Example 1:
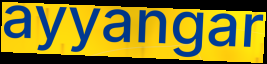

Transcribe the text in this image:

ayyangar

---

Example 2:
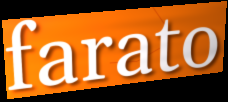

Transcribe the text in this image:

farato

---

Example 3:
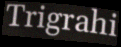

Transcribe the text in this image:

Trigrahi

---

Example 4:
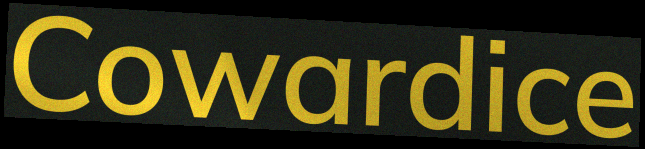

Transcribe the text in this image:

Cowardice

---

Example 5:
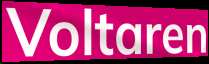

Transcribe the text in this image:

Voltaren